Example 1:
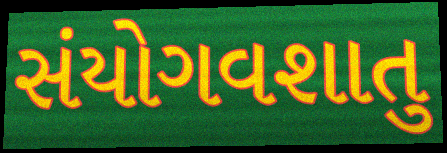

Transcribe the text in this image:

સંયોગવશાતુ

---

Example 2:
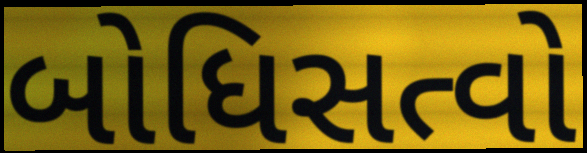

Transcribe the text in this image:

બોધિસત્વો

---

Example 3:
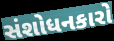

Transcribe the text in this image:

સંશોધનકારો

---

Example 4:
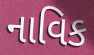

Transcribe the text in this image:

નાવિક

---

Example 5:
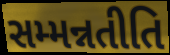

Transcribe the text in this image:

સમ્મન્નતીતિ